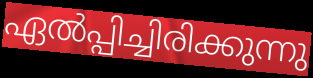
ഏൽപ്പിച്ചിരിക്കുന്നു